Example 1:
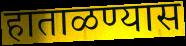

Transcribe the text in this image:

हाताळण्यास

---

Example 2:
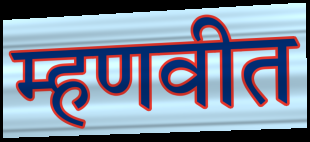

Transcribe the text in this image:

म्हणवीत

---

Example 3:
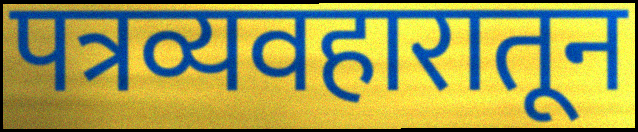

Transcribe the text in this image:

पत्रव्यवहारातून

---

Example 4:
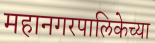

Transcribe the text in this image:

महानगरपालिकेच्या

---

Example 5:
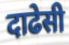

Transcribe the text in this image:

दाढेसी